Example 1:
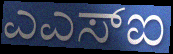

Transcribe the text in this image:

ಎಎಸ್ಐ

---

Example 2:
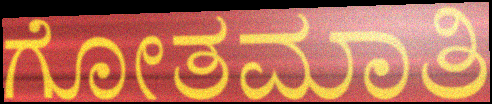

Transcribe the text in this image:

ಗೋತಮಾತಿ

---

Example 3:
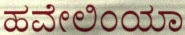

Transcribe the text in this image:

ಹವೇಲಿಂಯಾ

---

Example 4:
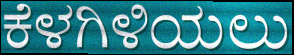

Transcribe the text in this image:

ಕೆಳಗಿಳಿಯಲು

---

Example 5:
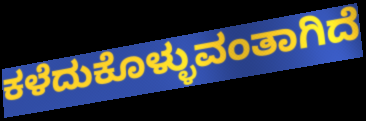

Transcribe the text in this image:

ಕಳೆದುಕೊಳ್ಳುವಂತಾಗಿದೆ